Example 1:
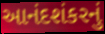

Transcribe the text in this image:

આનંદશંકરનું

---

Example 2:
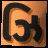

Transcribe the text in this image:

ઝિ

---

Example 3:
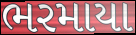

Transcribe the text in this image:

ભરમાયા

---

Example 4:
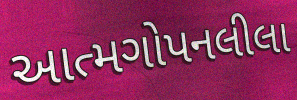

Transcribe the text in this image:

આત્મગોપનલીલા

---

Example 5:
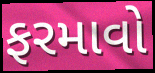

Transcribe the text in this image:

ફરમાવો